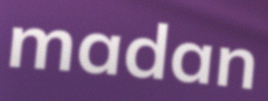
madan